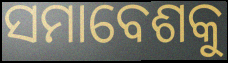
ସମାବେଶକୁ